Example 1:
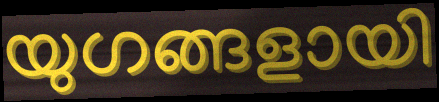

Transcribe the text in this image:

യുഗങ്ങളായി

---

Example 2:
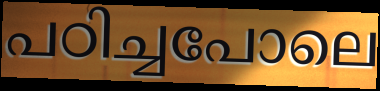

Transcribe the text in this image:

പഠിച്ചപോലെ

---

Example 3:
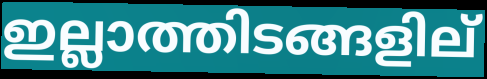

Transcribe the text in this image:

ഇല്ലാത്തിടങ്ങളില്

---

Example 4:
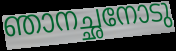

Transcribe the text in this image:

ഞാനച്ഛനോടു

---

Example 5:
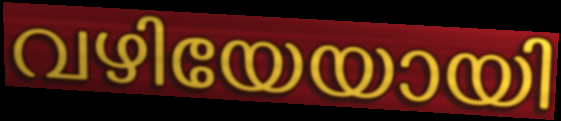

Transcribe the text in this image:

വഴിയേയായി